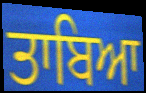
ਤਾਬਿਆ